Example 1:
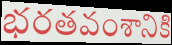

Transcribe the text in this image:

భరతవంశానికి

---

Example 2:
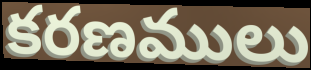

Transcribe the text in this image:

కరణములు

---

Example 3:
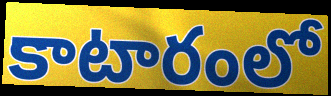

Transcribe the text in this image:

కాటారంలో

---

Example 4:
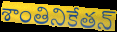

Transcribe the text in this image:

శాంతినికేతన్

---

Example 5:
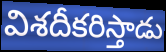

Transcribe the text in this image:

విశదీకరిస్తాడు